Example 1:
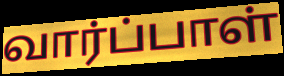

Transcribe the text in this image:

வார்ப்பாள்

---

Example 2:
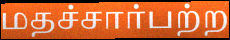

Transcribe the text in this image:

மதச்சார்பற்ற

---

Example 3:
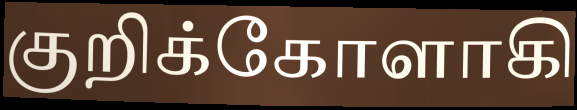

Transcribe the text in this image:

குறிக்கோளாகி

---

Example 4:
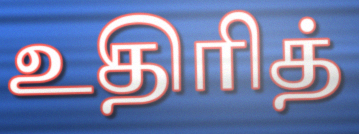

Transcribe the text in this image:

உதிரித்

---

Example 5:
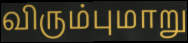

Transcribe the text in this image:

விரும்புமாறு